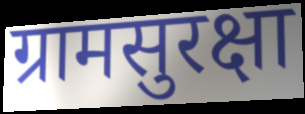
ग्रामसुरक्षा